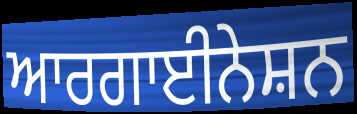
ਆਰਗਾਈਨੇਸ਼ਨ